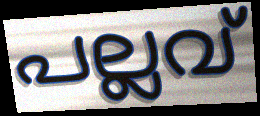
പല്ലവ്